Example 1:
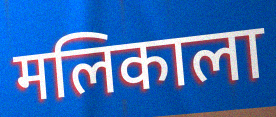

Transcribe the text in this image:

मलिकाला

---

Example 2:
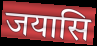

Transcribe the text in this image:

जयासि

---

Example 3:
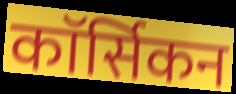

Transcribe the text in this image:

कॉर्सिकन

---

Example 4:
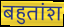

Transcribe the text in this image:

बहुतांश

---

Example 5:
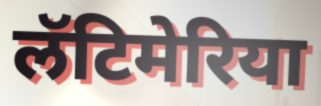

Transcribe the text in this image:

लॅटिमेरिया